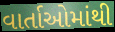
વાર્તાઓમાંથી